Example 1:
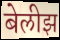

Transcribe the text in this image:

बेलीझ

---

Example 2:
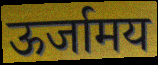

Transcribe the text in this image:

ऊर्जामय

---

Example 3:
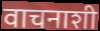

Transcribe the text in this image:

वाचनाशी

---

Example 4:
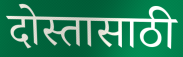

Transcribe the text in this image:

दोस्तासाठी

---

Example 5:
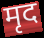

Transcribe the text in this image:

मृद